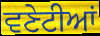
ਵਣੇਟੀਆਂ